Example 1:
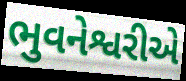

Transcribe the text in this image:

ભુવનેશ્વરીએ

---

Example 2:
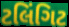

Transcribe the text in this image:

ટલિંગિટ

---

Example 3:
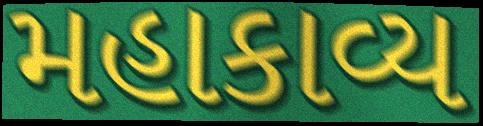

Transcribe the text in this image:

મહાકાવ્ય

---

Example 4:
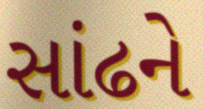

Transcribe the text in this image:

સાંઢને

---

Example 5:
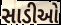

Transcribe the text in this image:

સાડીઓ